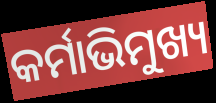
କର୍ମାଭିମୁଖ୍ୟ